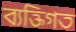
ব্যক্তিগত